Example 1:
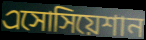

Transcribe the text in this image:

এসোসিয়েশান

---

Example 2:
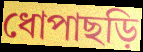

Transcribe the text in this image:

ধোপাছড়ি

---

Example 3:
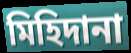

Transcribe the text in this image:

মিহিদানা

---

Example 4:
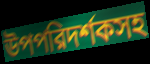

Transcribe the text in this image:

উপপরিদর্শকসহ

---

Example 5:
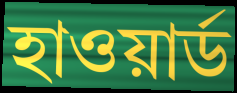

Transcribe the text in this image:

হাওয়ার্ড